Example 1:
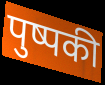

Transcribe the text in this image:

पुष्पकी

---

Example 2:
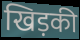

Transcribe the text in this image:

खिड़की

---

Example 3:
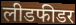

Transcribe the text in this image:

लीडफीडर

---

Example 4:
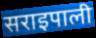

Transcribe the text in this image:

सराइपाली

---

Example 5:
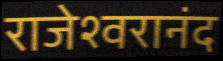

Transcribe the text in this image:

राजेश्वरानंद